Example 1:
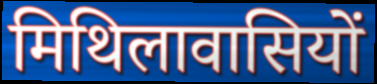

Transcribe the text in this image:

मिथिलावासियों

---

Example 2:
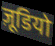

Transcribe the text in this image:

ज़ूडियो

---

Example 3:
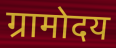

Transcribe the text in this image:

ग्रामोदय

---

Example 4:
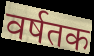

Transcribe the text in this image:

वर्षतक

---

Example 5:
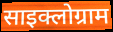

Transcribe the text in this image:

साइक्लोग्राम